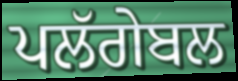
ਪਲੱਗੇਬਲ